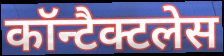
कॉन्टैक्टलेस